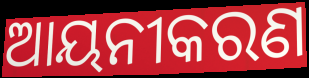
ଆୟନୀକରଣ